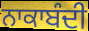
ਨਾਕਾਬੰਦੀ